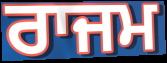
ਰਾਜਮ